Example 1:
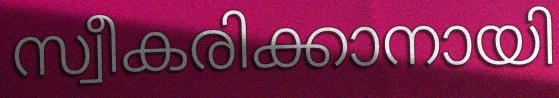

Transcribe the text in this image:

സ്വീകരിക്കാനായി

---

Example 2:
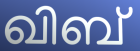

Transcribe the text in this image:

ഖിബ്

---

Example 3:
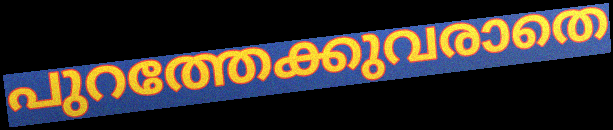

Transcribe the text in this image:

പുറത്തേക്കുവരാതെ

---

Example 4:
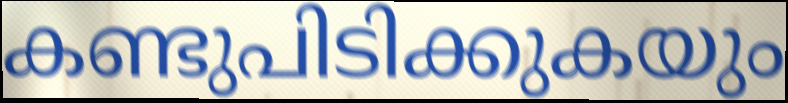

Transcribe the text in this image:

കണ്ടുപിടിക്കുകയും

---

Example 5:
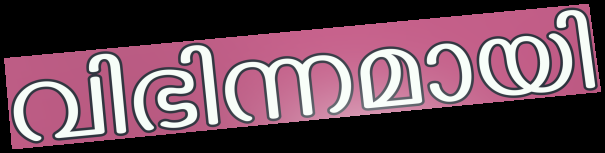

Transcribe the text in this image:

വിഭിന്നമായി